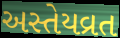
અસ્તેયવ્રત